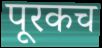
पूरकच